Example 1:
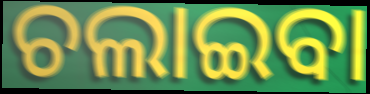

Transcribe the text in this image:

ଚଲାଇବା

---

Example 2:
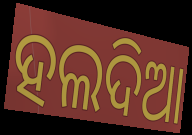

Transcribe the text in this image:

ହଲଦିଆ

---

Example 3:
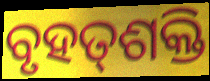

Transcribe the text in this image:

ବୃହତ୍‌ଶକ୍ତି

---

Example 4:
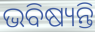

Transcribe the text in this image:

ଭବିଷ୍ୟନ୍ତି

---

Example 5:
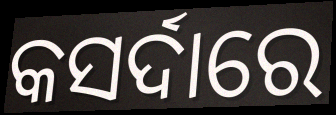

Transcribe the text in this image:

କସର୍ଦାରେ